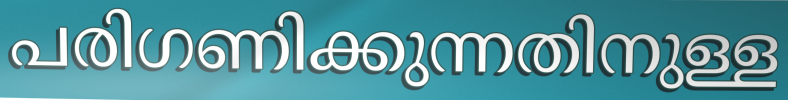
പരിഗണിക്കുന്നതിനുള്ള